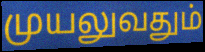
முயலுவதும்